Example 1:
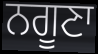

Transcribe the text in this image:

ਨਗੂਣਾ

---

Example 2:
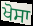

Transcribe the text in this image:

ਖੋਸਾ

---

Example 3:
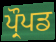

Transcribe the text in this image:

ਪ੍ਰੌਪਡ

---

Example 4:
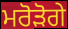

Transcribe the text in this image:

ਮਰੋੜੋਗੇ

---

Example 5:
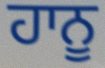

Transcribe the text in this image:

ਹਾਨੂ